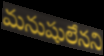
మనుషులేనని